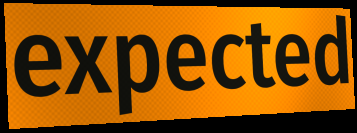
expected